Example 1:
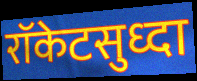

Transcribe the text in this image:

रॉकेटसुध्दा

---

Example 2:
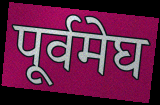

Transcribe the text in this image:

पूर्वमेघ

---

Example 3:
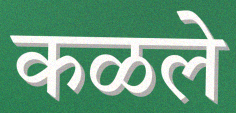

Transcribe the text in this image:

कळले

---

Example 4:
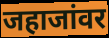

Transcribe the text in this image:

जहाजांवर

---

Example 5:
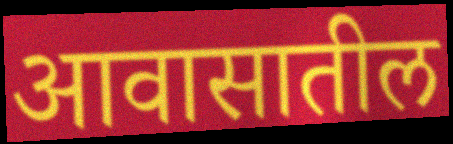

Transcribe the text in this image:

आवासातील